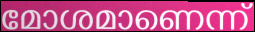
മോശമാണെന്ന്